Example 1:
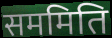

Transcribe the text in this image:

सममिति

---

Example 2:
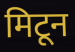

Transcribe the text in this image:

मिटून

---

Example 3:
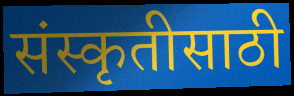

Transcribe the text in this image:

संस्कृतीसाठी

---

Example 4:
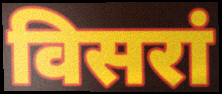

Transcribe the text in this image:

विसरां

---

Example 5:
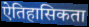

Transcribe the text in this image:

ऐतिहासिकता